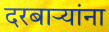
दरबाऱ्यांना